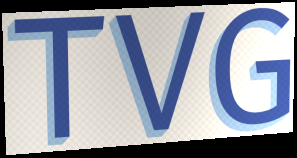
TVG